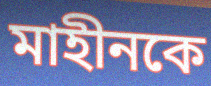
মাহীনকে